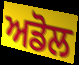
ਅਡੋਲ